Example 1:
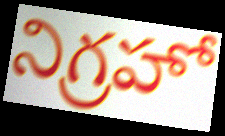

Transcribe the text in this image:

నిగ్రహో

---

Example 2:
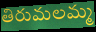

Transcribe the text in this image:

తిరుమలమ్మ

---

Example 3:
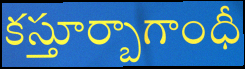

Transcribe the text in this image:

కస్తూర్బాగాంధీ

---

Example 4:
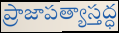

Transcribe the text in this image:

ప్రాజాపత్యాస్తద్ధ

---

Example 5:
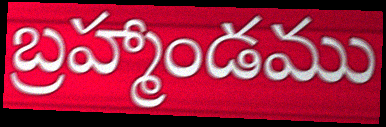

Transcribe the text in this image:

బ్రహ్మాండము